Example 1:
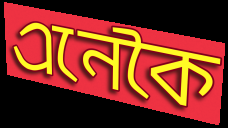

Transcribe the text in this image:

এনেকৈ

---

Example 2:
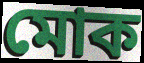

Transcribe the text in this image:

মোক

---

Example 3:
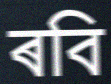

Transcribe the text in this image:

ৰবি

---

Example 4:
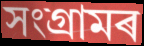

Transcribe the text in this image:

সংগ্ৰামৰ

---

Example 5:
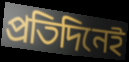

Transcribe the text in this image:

প্ৰতিদিনেই